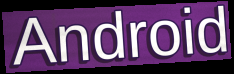
Android